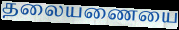
தலையணையை